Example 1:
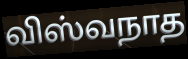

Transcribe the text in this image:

விஸ்வநாத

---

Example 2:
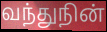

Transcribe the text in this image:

வந்துநின்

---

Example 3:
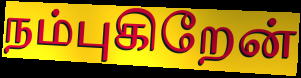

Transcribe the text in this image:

நம்புகிறேன்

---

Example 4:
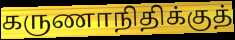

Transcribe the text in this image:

கருணாநிதிக்குத்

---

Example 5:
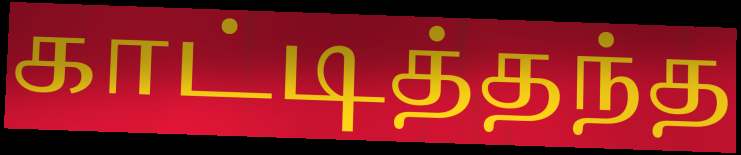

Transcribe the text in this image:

காட்டித்தந்த